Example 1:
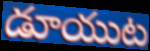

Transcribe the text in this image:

డూయుట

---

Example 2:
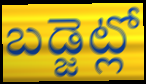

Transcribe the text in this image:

బడ్జెట్లో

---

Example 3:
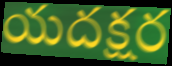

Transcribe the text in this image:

యదక్షర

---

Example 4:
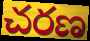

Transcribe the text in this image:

చరణ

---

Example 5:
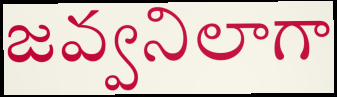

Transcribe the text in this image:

జవ్వనిలాగా